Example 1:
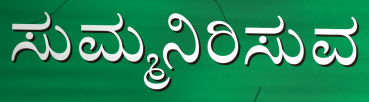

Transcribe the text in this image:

ಸುಮ್ಮನಿರಿಸುವ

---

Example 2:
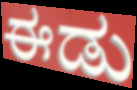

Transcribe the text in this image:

ಈಡು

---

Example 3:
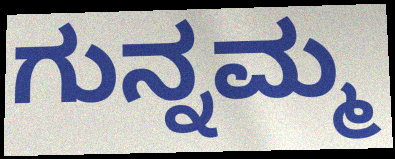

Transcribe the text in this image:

ಗುನ್ನಮ್ಮ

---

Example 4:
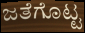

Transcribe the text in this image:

ಜತೆಗೊಟ್ಟ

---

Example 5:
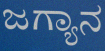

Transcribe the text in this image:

ಜಗ್ಯಾನ